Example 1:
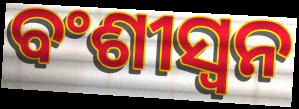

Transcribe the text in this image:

ବଂଶୀସ୍ୱନ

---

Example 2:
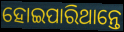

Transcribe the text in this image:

ହୋଇପାରିଥାନ୍ତେ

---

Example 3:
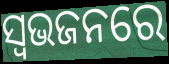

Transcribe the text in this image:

ସ୍ଵଭଜନରେ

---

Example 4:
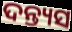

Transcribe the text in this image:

ଦନ୍ତ୍ୟସ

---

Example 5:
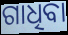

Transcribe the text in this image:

ଗାଧିବା